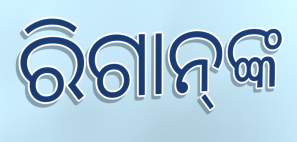
ରିଗାନ୍‌ଙ୍କ